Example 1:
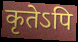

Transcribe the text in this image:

कृतेऽपि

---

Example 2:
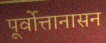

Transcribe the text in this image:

पूर्वोत्तानासन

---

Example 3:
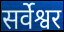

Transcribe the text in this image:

सर्वेश्वर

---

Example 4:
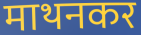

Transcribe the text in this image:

माथनकर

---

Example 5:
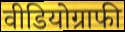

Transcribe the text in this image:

वीडियोग्राफी